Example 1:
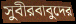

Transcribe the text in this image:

সুবীরবাবুদের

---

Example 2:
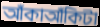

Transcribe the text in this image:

আঁকাআঁকিটা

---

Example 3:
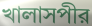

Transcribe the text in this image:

খালাসপীর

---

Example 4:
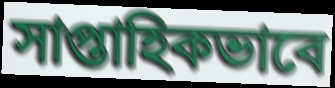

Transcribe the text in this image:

সাপ্তাহিকভাবে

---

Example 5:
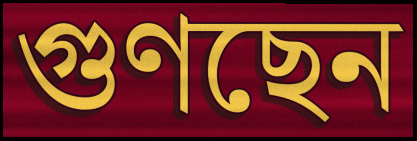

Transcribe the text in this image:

গুণছেন